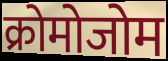
क्रोमोजोम